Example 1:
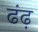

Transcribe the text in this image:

ढंढ़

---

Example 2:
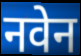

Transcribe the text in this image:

नवेन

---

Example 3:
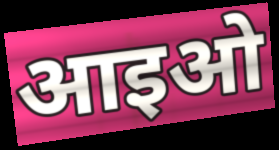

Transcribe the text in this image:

आइओ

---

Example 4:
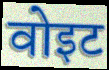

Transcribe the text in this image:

वोइट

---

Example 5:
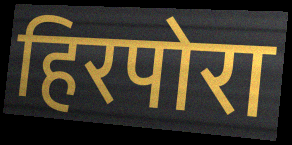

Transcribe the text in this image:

हिरपोरा